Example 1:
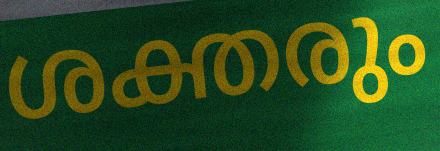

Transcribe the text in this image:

ശക്തരും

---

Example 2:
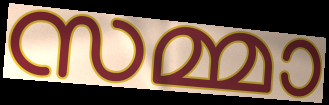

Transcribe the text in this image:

സമ്മാ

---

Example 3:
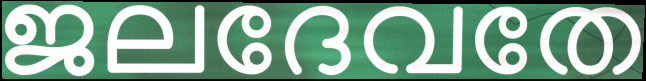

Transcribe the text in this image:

ജലദേവതേ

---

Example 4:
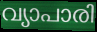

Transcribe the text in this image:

വ്യാപാരി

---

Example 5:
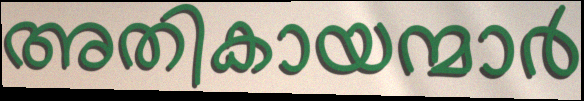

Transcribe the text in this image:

അതികായന്മാർ